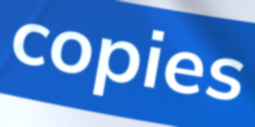
copies